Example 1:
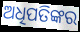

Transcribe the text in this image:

ଅଧିପତିଙ୍କର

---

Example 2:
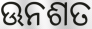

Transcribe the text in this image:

ଊନଶତ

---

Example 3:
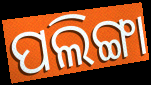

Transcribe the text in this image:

ପଲିଙ୍ଗା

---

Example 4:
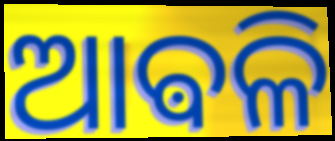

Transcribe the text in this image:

ଆଵଳି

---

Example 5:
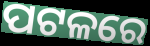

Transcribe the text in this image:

ପଟଳରେ